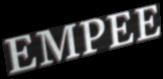
EMPEE